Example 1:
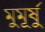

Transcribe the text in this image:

মুমূর্ষু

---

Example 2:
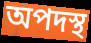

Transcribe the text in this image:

অপদস্থ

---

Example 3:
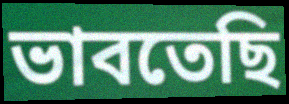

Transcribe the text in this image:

ভাবতেছি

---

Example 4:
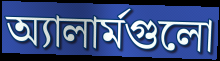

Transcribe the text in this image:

অ্যালার্মগুলো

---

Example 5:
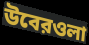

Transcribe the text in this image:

উবেরওলা